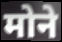
मोने